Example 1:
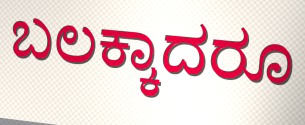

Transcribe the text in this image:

ಬಲಕ್ಕಾದರೂ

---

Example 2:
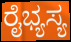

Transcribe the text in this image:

ರೈಭ್ಯಸ್ಯ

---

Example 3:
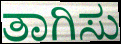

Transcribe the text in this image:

ತಾಗಿಸು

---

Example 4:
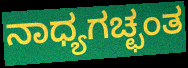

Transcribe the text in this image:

ನಾಧ್ಯಗಚ್ಛಂತ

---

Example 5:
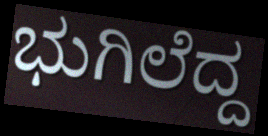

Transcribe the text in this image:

ಭುಗಿಲೆದ್ದ